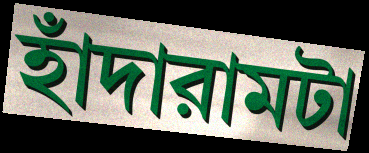
হাঁদারামটা